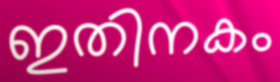
ഇതിനകം